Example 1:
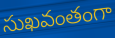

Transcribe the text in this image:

సుఖవంతంగా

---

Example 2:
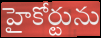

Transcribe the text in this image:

హైకోర్టును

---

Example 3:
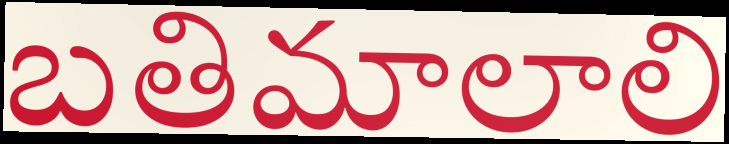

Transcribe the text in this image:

బతిమాలాలి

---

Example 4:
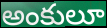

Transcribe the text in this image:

అంకులూ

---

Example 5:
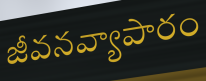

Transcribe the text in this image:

జీవనవ్యాపారం